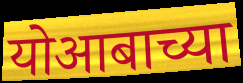
योआबाच्या